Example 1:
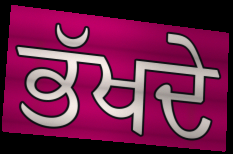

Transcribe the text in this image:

ਭੱਖਦੇ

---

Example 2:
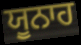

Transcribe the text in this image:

ਯੂਨਾਹ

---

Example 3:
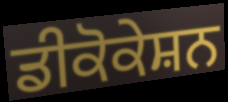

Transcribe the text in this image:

ਡੀਕੋਕੇਸ਼ਨ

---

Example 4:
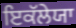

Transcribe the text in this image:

ਇਕੱਲੇਯਾ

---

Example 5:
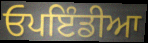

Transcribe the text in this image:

ਓਪਇੰਡੀਆ